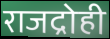
राजद्रोही